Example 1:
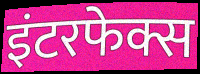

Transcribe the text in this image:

इंटरफेक्स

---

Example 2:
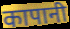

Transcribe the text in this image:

कापानी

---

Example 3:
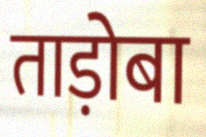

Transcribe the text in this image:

ताड़ोबा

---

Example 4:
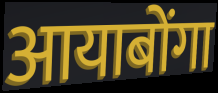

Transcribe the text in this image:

आयाबोंगा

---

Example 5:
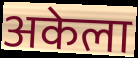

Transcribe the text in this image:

अकेला